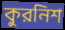
কুরনিশ